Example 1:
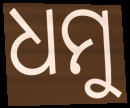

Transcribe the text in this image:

ଧମୁ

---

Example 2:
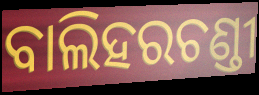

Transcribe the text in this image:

ବାଲିହରଚଣ୍ଡୀ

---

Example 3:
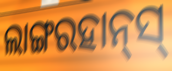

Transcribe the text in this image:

ଲାଙ୍ଗରହାନ୍‌ସ୍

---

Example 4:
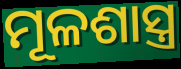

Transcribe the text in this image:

ମୂଳଶାସ୍ତ୍ର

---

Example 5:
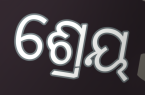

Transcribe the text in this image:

ଶ୍ରେୟ